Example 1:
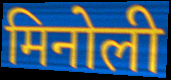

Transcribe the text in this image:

मिनोली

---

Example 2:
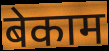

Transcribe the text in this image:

बेकाम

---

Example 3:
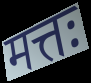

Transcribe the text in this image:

मत्तः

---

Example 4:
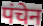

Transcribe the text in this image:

पंचेन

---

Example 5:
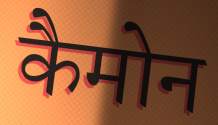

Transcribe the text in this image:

कैमोन